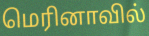
மெரினாவில்